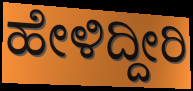
ಹೇಳಿದ್ದೀರಿ